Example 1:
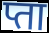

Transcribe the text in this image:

प्ता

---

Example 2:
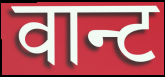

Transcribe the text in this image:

वान्ट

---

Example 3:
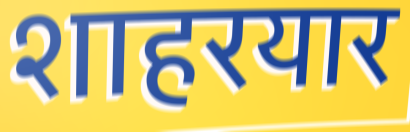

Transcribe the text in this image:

शाहरयार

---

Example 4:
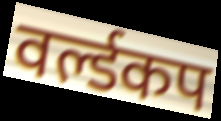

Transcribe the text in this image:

वर्ल्डकप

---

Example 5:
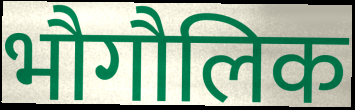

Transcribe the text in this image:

भौगौलिक